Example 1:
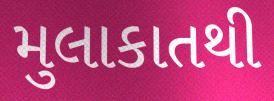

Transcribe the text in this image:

મુલાકાતથી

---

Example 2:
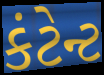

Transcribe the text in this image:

કંટેન્ટ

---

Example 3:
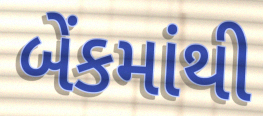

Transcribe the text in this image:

બેંકમાંથી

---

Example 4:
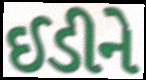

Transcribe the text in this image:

ઈડીને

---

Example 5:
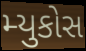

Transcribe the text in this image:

મ્યુકોસ